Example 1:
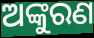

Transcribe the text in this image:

ଅଙ୍କୁରଣ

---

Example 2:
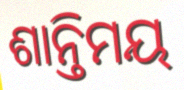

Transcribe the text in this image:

ଶାନ୍ତିମୟ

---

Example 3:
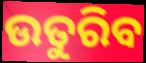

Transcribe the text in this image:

ଉତୁରିବ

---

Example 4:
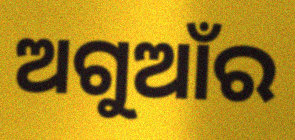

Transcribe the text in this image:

ଅଗୁଆଁର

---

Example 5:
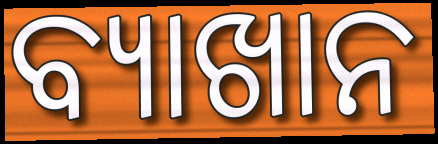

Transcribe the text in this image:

ବ୍ୟାଖାନ